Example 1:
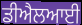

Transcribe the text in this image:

ਡੀਐਲਆਈ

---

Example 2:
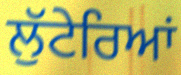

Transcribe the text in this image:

ਲੁੱਟੇਰਿਆਂ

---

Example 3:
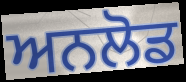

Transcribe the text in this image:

ਅਨਲੋਡ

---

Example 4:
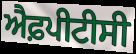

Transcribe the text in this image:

ਐਫ਼ਪੀਟੀਸੀ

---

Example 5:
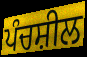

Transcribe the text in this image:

ਪੰਚਸ਼ੀਲ